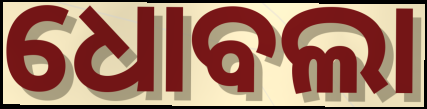
ଧୋବଲା